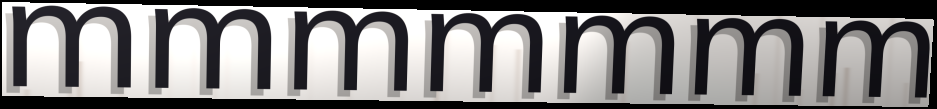
mmmmmmm